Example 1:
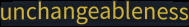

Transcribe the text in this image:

unchangeableness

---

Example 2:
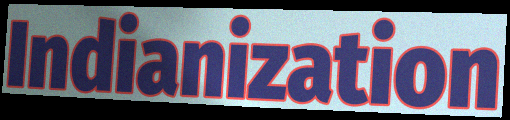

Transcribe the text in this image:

Indianization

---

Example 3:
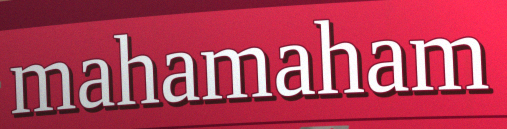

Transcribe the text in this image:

mahamaham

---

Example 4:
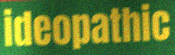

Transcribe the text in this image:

ideopathic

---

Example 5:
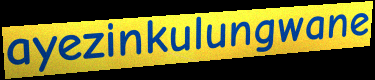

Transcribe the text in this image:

ayezinkulungwane